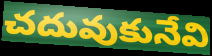
చదువుకునేవి